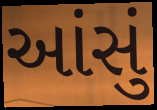
આંસું